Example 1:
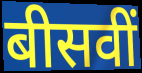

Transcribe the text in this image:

बीसवीं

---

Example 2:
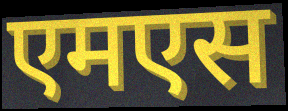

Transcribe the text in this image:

एमएस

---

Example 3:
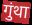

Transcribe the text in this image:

गुंथा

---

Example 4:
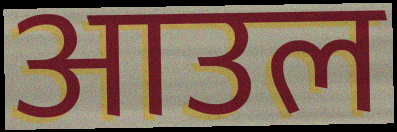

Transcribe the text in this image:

आउल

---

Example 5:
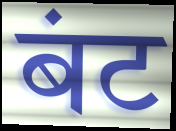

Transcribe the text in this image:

बंट